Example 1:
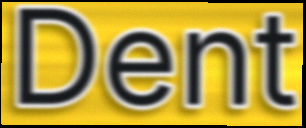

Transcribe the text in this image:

Dent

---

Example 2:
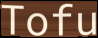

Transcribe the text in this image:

Tofu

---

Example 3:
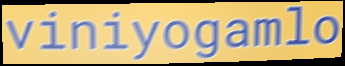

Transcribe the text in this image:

viniyogamlo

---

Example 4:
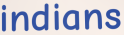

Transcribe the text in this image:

indians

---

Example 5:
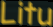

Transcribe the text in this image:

Litu